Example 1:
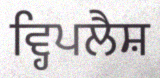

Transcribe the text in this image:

ਵ੍ਹਿਪਲੈਸ਼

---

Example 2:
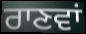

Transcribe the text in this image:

ਰਾਣਵਾਂ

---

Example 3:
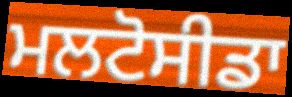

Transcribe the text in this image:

ਮਲਟੋਸੀਡਾ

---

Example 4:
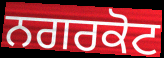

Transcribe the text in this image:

ਨਗਰਕੋਟ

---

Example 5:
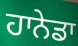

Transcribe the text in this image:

ਹਾਨੇਡਾ